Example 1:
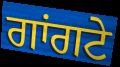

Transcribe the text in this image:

ਗਾਂਗਟੇ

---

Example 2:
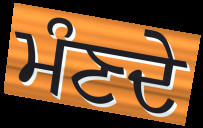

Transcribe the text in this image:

ਮੰਣਦੇ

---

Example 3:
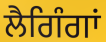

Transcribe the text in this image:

ਲੈਗਿੰਗਾਂ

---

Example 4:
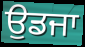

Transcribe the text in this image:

ਉਡਜਾ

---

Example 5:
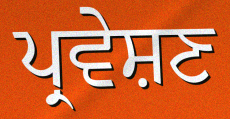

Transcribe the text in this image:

ਪ੍ਰਵੇਸ਼ਣ